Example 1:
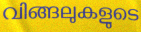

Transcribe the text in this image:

വിങ്ങലുകളുടെ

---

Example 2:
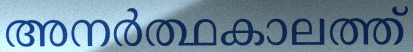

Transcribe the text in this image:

അനർത്ഥകാലത്ത്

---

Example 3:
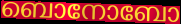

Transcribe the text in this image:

ബൊനോബോ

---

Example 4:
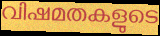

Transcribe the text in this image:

വിഷമതകളുടെ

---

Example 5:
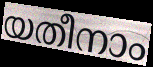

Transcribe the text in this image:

യതീനാം